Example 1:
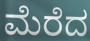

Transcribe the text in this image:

ಮೆರೆದ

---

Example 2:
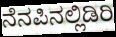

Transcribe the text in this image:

ನೆನಪಿನಲ್ಲಿಡಿರಿ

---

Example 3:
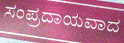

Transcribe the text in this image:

ಸಂಪ್ರದಾಯವಾದ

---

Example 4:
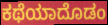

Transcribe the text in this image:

ಕಥೆಯಾದೊಡಂ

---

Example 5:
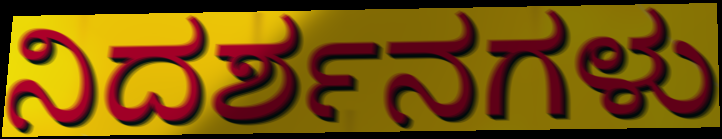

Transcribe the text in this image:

ನಿದರ್ಶನಗಳು